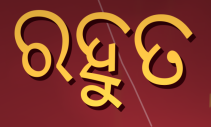
ରହୁତ